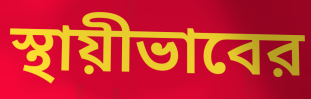
স্থায়ীভাবের